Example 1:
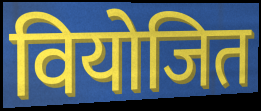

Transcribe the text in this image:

वियोजित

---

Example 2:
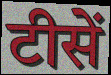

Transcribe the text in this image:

टीसें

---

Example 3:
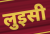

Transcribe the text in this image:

लुइसी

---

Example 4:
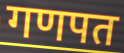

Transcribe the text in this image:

गणपत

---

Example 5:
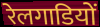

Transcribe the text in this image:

रेलगाडियों